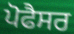
ਪੋਫੈਸਰ